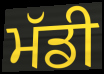
ਮੱਡੀ